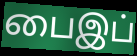
பைஇப்